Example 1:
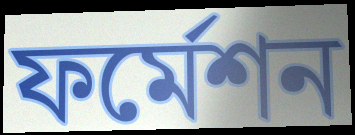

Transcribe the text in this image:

ফর্মেশন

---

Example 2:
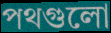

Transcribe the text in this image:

পথগুলো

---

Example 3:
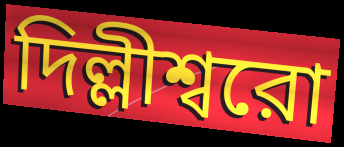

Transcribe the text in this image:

দিল্লীশ্বরো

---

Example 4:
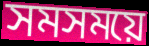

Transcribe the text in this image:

সমসময়ে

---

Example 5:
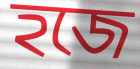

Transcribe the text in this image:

হজে